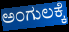
ಅಂಗುಲಕ್ಕೆ